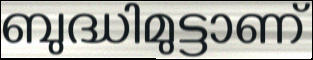
ബുദ്ധിമുട്ടാണ്